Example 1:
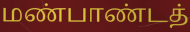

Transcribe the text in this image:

மண்பாண்டத்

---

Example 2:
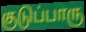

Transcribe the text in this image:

குடுப்பாரு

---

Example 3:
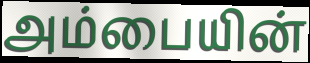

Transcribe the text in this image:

அம்பையின்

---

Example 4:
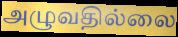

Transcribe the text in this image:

அழுவதில்லை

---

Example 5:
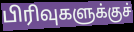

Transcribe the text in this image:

பிரிவுகளுக்குச்